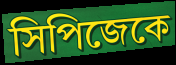
সিপিজেকে